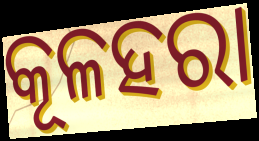
କୂଳହରା